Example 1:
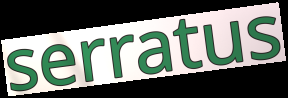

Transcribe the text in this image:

serratus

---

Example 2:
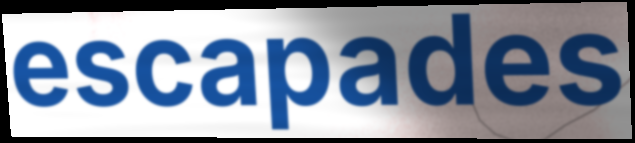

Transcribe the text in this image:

escapades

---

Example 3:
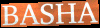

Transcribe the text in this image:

BASHA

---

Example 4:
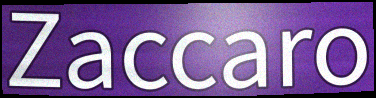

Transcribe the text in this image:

Zaccaro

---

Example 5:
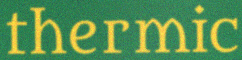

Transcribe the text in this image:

thermic